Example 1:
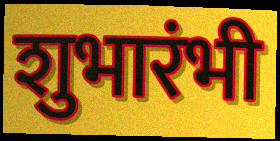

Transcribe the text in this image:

शुभारंभी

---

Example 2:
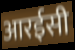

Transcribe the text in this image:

आरईसी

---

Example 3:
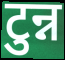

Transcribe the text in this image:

टुन्न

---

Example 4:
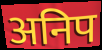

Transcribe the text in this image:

अनिप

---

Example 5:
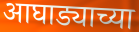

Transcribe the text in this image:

आघाड्याच्या